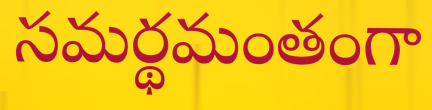
సమర్థమంతంగా